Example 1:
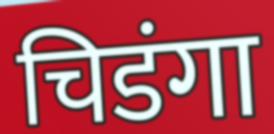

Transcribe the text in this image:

चिडंगा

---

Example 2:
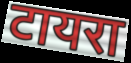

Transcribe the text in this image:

टायरा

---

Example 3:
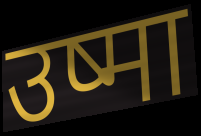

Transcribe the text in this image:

उष्मा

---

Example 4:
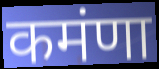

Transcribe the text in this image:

कमंणा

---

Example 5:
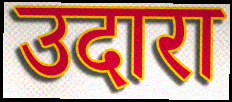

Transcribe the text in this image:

उदारा